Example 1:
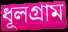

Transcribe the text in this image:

ধূলগ্রাম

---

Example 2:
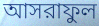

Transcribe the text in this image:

আসরাফুল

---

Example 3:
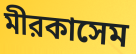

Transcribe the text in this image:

মীরকাসেম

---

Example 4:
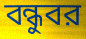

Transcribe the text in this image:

বন্ধুবর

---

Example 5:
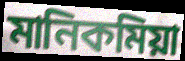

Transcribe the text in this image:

মানিকমিয়া